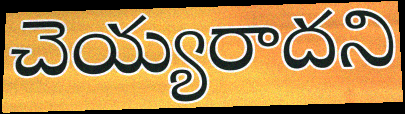
చెయ్యరాదని